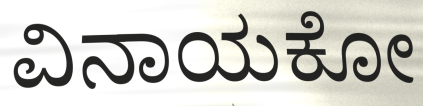
ವಿನಾಯಕೋ